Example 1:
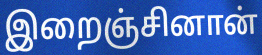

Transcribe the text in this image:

இறைஞ்சினான்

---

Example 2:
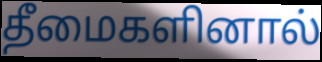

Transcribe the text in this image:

தீமைகளினால்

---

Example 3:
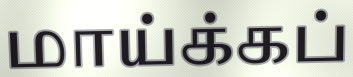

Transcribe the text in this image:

மாய்க்கப்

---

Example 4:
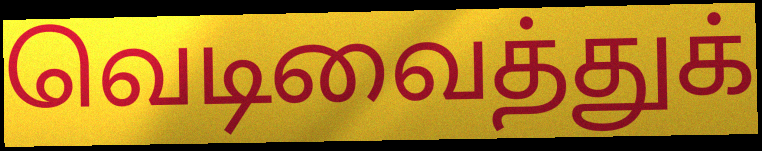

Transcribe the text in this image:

வெடிவைத்துக்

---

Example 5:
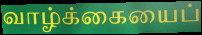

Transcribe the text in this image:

வாழ்க்கையைப்